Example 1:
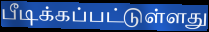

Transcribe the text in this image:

பீடிக்கப்பட்டுள்ளது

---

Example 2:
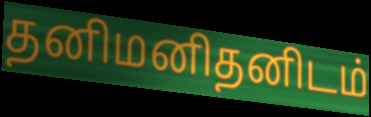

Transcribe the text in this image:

தனிமனிதனிடம்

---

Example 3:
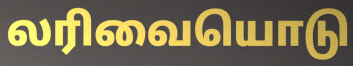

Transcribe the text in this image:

லரிவையொடு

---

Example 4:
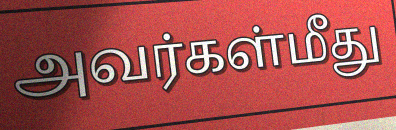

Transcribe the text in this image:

அவர்கள்மீது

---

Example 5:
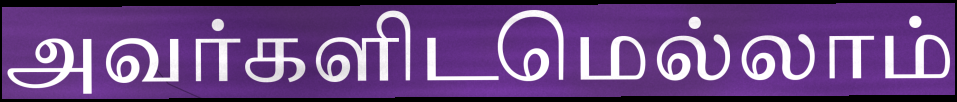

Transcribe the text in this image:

அவர்களிடமெல்லாம்